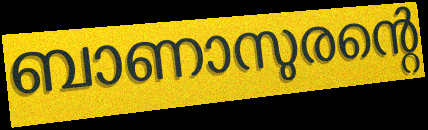
ബാണാസുരന്റെ